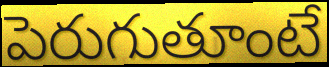
పెరుగుతూంటే